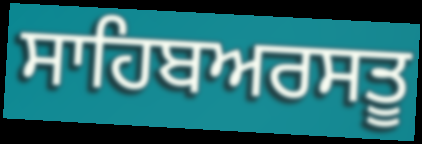
ਸਾਹਿਬਅਰਸਤੂ